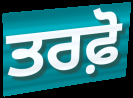
ਤਰਫ਼ੋ